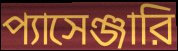
প্যাসেঞ্জারি